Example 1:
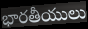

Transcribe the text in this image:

భారతీయులు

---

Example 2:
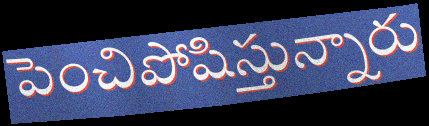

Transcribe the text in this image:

పెంచిపోషిస్తున్నారు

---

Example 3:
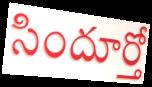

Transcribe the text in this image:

సిందూర్తో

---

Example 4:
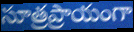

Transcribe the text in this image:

సూత్రప్రాయంగా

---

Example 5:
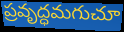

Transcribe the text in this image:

ప్రవృద్ధమగుచూ